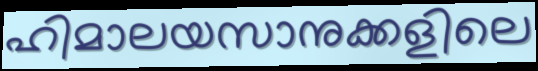
ഹിമാലയസാനുക്കളിലെ